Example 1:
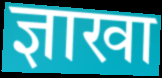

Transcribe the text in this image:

ज्ञाखा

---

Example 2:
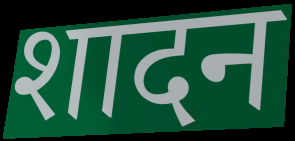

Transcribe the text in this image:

शादन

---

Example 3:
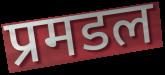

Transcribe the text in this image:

प्रमडल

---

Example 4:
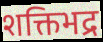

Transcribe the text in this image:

शक्तिभद्र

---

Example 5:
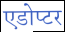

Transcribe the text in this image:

एडोप्टर